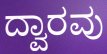
ದ್ವಾರವು